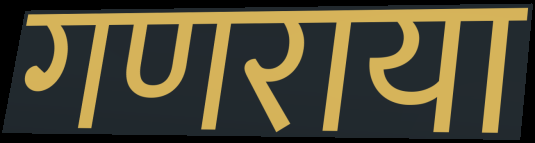
गणराया